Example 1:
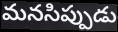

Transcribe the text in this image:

మనసిప్పుడు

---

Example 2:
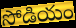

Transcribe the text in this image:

సోడియం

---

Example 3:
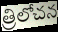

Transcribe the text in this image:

త్రిలోచన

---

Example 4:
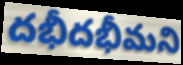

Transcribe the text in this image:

దభీదభీమని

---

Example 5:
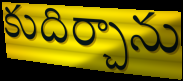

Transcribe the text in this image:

కుదిర్చాను